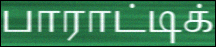
பாராட்டிக்